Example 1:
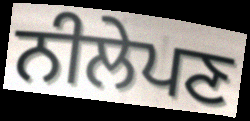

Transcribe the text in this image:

ਨੀਲੇਪਣ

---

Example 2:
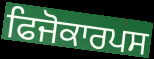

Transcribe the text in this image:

ਫਿਜੋਕਾਰਪਸ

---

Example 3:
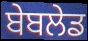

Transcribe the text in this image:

ਬੇਬਲੇਡ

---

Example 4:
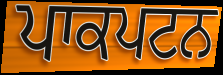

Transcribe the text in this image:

ਪਾਕਪਟਨ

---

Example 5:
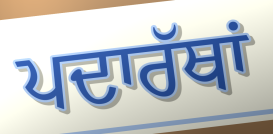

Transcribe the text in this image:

ਪਦਾਰੱਥਾਂ